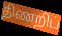
திணறிப்